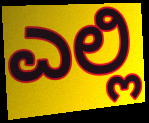
ಎಲ್ಲಿ